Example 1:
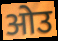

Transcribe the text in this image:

ओउ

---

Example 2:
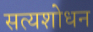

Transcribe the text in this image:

सत्यशोधन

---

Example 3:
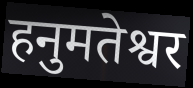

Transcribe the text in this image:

हनुमतेश्वर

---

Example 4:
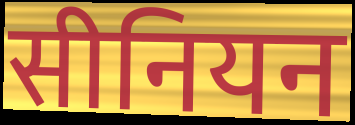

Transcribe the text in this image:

सीनियन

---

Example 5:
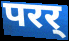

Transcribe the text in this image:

परर्